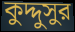
কুদ্দুসুর